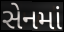
સેનમાં